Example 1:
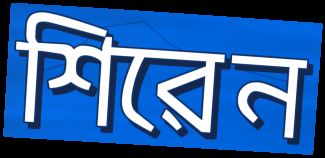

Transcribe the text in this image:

শিৱেন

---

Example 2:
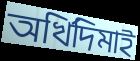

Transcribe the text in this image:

অৰ্খিদিমাই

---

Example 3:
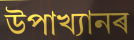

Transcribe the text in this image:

উপাখ্যানৰ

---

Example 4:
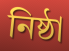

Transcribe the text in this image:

নিষ্ঠা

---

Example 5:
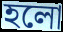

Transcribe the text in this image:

হলো